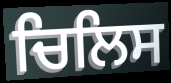
ਚਿਲਿਸ